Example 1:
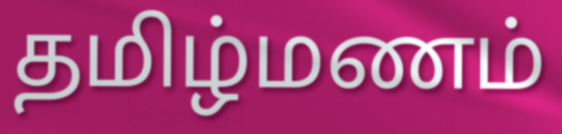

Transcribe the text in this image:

தமிழ்மணம்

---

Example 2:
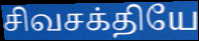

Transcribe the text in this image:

சிவசக்தியே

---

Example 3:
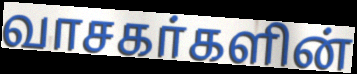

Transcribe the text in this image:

வாசகர்களின்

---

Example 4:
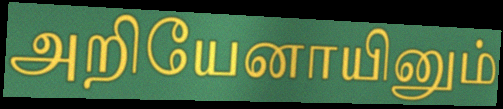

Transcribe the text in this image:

அறியேனாயினும்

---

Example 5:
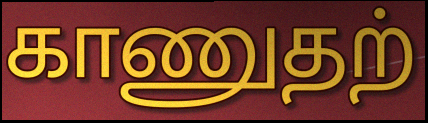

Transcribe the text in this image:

காணுதற்